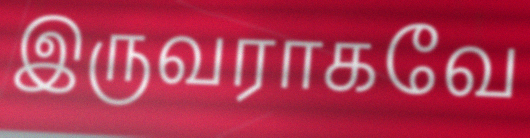
இருவராகவே